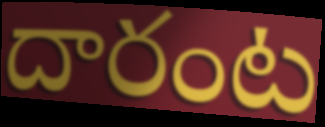
దారంట